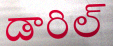
డారిల్